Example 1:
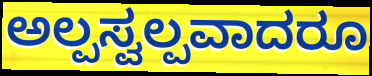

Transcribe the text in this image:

ಅಲ್ಪಸ್ವಲ್ಪವಾದರೂ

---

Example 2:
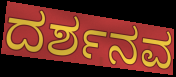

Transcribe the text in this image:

ದರ್ಶನವ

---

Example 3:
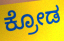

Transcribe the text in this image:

ಕ್ರೋಡ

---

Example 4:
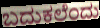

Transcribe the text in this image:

ಬದುಕಲೆಂದು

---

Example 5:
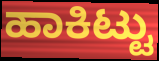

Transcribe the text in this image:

ಹಾಕಿಟ್ಟು